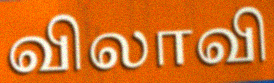
விலாவி